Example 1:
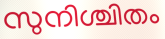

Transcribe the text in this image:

സുനിശ്ചിതം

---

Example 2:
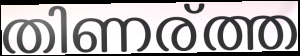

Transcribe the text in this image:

തിണര്ത്ത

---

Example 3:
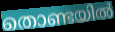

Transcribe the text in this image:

തൊണ്ടയിൽ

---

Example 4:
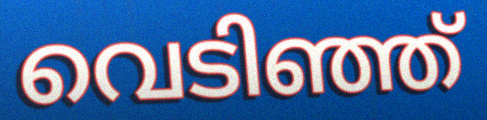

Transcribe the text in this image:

വെടിഞ്ഞ്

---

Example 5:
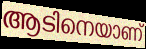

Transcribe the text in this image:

ആടിനെയാണ്